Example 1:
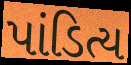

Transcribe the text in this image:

પાંડિત્ય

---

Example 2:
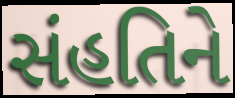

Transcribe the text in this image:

સંહતિને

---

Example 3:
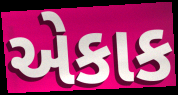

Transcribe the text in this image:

એકાક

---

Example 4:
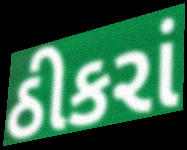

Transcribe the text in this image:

ઠીકરાં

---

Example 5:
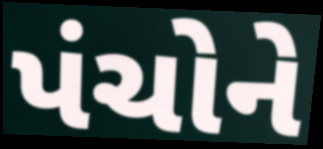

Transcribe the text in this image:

પંચોને